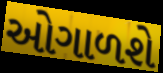
ઓગાળશે